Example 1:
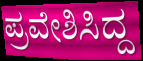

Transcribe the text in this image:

ಪ್ರವೇಶಿಸಿದ್ದ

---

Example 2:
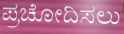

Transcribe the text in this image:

ಪ್ರಚೋದಿಸಲು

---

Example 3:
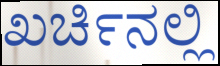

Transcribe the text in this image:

ಖರ್ಚಿನಲ್ಲಿ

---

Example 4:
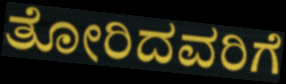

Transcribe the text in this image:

ತೋರಿದವರಿಗೆ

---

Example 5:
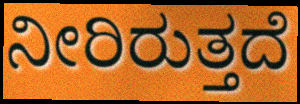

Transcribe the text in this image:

ನೀರಿರುತ್ತದೆ